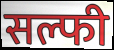
सल्फी